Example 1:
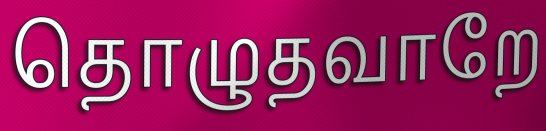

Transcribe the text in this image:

தொழுதவாறே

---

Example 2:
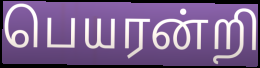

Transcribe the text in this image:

பெயரன்றி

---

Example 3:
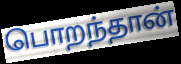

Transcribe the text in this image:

பொறந்தான்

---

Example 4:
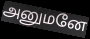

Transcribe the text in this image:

அனுமனே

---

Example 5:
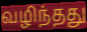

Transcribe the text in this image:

வழிந்தது